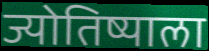
ज्योतिष्याला